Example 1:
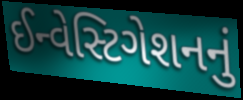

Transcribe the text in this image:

ઈન્વેસ્ટિગેશનનું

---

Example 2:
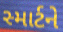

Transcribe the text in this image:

સ્માર્ટને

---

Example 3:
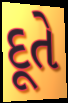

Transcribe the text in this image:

દૂતે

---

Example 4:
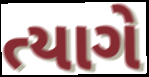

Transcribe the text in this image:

ત્યાગે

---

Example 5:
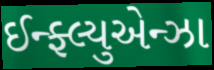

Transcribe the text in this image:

ઈન્ફ્લ્યુએન્ઝા